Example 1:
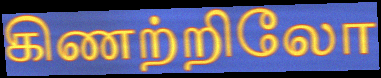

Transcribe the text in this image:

கிணற்றிலோ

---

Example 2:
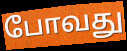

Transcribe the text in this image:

போவது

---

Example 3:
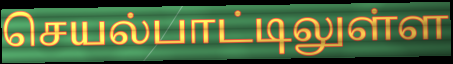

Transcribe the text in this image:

செயல்பாட்டிலுள்ள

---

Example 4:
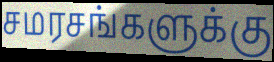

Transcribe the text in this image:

சமரசங்களுக்கு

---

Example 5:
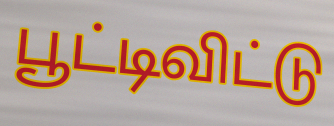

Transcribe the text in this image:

பூட்டிவிட்டு